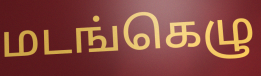
மடங்கெழு